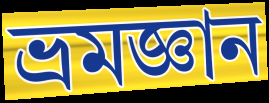
ভ্রমজ্ঞান